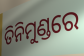
ତିନିମୁଣ୍ଡରେ